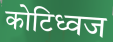
कोटिध्वज